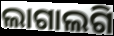
ଲାଗାଲଗି